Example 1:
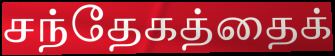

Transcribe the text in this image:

சந்தேகத்தைக்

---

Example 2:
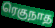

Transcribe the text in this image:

ரெகுநாத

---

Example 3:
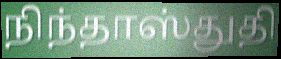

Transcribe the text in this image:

நிந்தாஸ்துதி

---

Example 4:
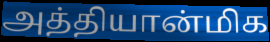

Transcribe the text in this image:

அத்தியான்மிக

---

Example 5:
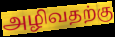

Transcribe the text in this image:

அழிவதற்கு